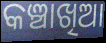
କଞ୍ଚାଖିଆ